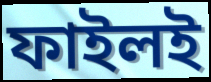
ফাইলই